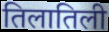
तिलातिली